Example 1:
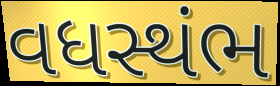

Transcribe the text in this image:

વધસ્થંભ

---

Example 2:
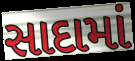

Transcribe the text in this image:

સાદામાં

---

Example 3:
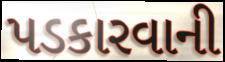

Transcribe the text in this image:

પડકારવાની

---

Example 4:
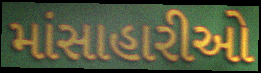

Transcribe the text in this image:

માંસાહારીઓ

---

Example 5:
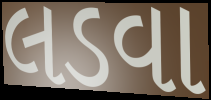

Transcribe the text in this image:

લડવા